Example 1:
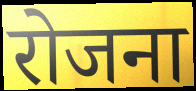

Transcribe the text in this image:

रोजना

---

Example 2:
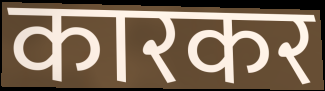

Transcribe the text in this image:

कारकर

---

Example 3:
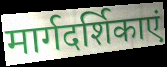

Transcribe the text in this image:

मार्गदर्शिकाएं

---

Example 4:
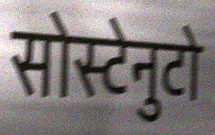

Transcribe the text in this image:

सोस्टेनुटो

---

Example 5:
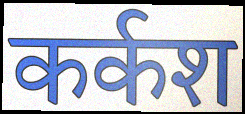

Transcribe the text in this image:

कर्कश